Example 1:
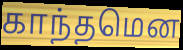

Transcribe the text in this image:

காந்தமென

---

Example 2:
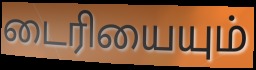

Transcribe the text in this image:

டைரியையும்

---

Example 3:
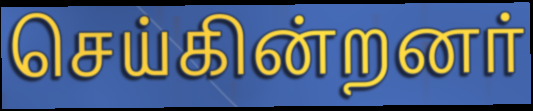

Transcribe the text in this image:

செய்கின்றனர்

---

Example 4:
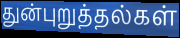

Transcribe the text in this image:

துன்புறுத்தல்கள்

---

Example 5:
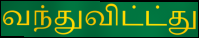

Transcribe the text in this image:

வந்துவிட்ட்து